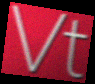
Vt